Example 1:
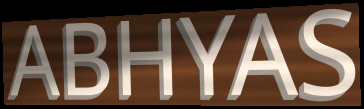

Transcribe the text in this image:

ABHYAS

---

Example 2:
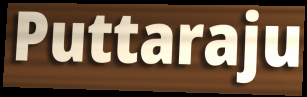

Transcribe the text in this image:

Puttaraju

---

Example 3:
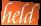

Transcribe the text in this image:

held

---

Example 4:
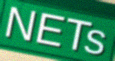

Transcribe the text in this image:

NETs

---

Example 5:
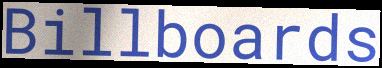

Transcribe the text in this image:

Billboards